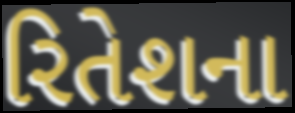
રિતેશના